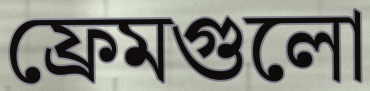
ফ্রেমগুলো